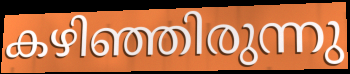
കഴിഞ്ഞിരുന്നു